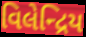
વિલેન્દ્રિય